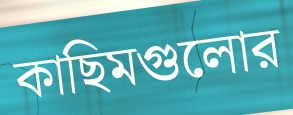
কাছিমগুলোর